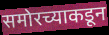
समोरच्याकडून